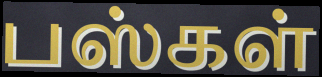
பஸ்கள்